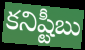
కనిష్టీబు